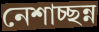
নেশাচ্ছন্ন